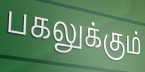
பகலுக்கும்